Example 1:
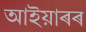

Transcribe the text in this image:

আইয়াৰৰ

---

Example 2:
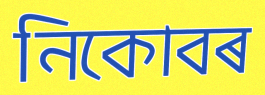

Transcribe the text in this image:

নিকোবৰ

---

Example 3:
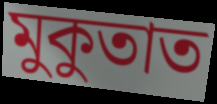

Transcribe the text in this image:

মুকুতাত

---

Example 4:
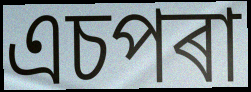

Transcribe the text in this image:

এচপৰা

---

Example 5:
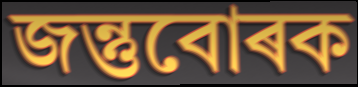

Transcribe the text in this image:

জন্তুবোৰক